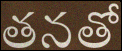
తనతో